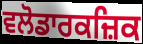
ਵਲੋਡਾਰਕਜ਼ਿਕ